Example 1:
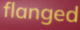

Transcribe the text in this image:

flanged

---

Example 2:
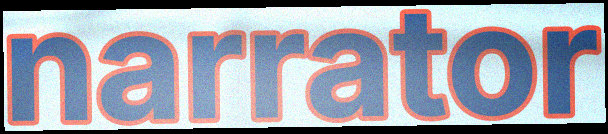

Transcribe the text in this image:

narrator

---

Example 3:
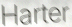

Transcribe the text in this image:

Harter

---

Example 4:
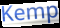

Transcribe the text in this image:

Kemp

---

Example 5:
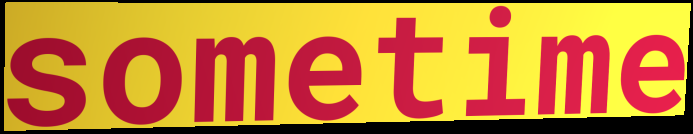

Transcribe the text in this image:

sometime